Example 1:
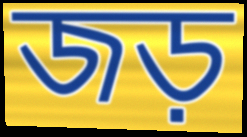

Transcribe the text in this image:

জড়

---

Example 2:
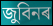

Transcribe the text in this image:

জুবিনৰ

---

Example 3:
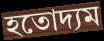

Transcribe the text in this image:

হতোদ্যম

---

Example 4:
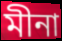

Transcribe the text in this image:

মীনা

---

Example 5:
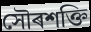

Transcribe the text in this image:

সৌৰশক্তি